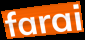
farai